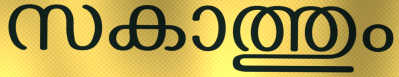
സകാത്തും